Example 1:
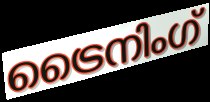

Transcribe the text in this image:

ട്രൈനിംഗ്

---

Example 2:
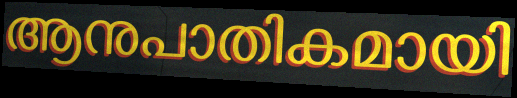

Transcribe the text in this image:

ആനുപാതികമായി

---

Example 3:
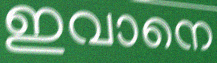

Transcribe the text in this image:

ഇവാനെ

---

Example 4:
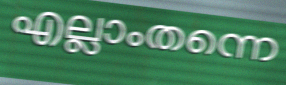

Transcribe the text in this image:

എല്ലാംതന്നെ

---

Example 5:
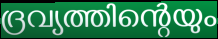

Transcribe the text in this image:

ദ്രവ്യത്തിന്റെയും